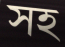
সহ